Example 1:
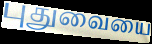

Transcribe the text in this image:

புதுவையை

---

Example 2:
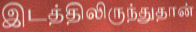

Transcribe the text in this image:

இடத்திலிருந்துதான்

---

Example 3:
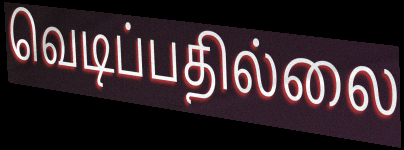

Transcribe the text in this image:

வெடிப்பதில்லை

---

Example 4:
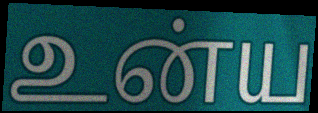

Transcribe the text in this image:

உன்ய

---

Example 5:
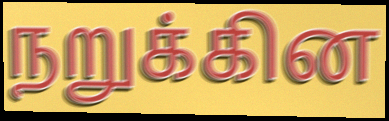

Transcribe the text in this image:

நறுக்கின